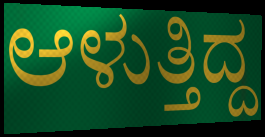
ಆಳುತ್ತಿದ್ದ